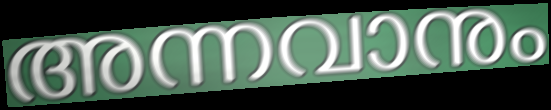
അന്നവാനും